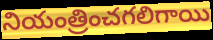
నియంత్రించగలిగాయి